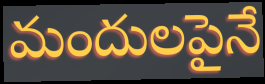
మందులపైనే